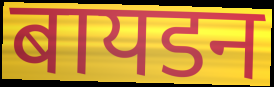
बायडन